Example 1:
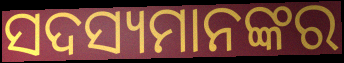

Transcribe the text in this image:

ସଦସ୍ୟମାନଙ୍କର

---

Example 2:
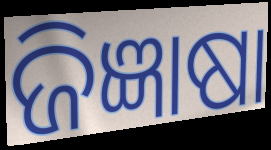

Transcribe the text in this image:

ଜିଜ୍ଞାଷା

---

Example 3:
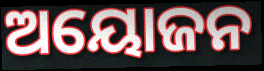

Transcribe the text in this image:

ଅୟୋଜନ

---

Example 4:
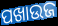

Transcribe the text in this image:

ପଖାଉଜ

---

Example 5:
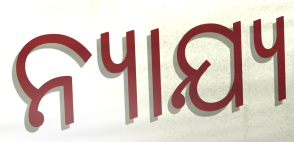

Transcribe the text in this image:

ନ୍ୟାଯ୍ୟ